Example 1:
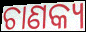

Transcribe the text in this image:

ଚାଣକ୍ଯ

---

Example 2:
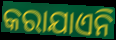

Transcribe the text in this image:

କରାଯାଏନି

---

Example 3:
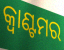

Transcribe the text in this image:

କ୍ୱାଣ୍ଟମର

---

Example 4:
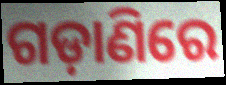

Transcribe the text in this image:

ଗଡ଼ାଣିରେ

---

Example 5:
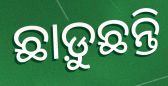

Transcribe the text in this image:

ଛାଡ଼ୁଛନ୍ତି